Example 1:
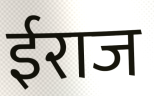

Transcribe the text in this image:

ईराज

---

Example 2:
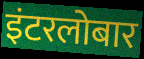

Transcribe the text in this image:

इंटरलोबार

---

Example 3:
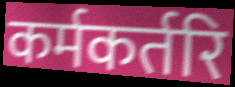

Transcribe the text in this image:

कर्मकर्तरि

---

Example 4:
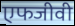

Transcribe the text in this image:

एफजीवी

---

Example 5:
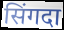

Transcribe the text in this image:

सिंगदा